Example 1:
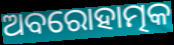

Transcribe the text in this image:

ଅବରୋହାତ୍ମକ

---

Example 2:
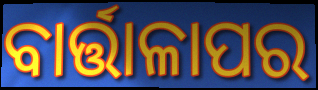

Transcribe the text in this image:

ବାର୍ତ୍ତାଳାପର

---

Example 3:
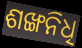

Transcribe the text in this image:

ଶଙ୍ଖନିଧି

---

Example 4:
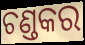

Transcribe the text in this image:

ଚଣ୍ଡକର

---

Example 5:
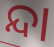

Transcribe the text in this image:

ନ୍ଦା